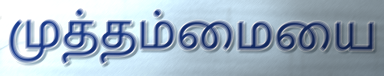
முத்தம்மையை